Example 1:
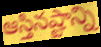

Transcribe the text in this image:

ఆస్తినష్టాన్ని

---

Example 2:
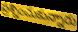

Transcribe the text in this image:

ప్రశ్నించుకున్నారు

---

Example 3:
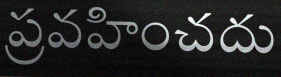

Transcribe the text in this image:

ప్రవహించదు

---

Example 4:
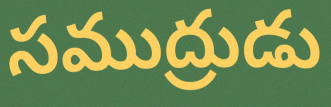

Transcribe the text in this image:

సముద్రుడు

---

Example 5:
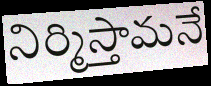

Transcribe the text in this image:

నిర్మిస్తామనే